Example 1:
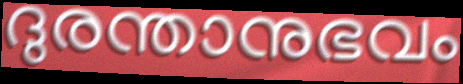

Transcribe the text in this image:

ദുരന്താനുഭവം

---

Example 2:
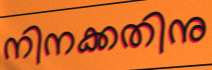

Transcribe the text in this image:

നിനക്കതിനു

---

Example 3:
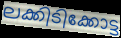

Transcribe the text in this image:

ലക്കിടിക്കോട്ട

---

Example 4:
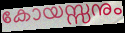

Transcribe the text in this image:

കോയസ്സനും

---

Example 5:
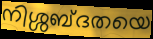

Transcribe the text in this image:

നിശ്ശബ്ദതയെ